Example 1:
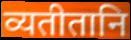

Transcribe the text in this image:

व्यतीतानि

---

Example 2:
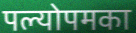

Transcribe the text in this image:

पल्योपमका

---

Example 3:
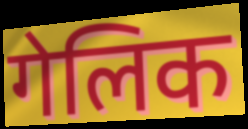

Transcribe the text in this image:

गेलिक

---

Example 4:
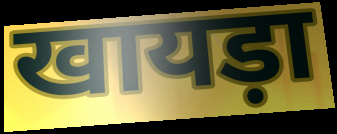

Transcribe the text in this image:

खायड़ा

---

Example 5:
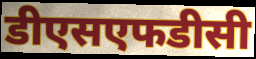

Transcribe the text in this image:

डीएसएफडीसी